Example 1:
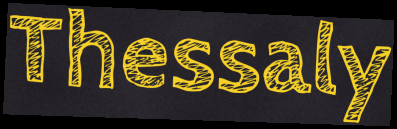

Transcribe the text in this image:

Thessaly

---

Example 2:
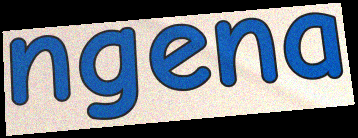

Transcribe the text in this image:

ngena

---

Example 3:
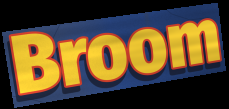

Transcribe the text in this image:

Broom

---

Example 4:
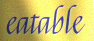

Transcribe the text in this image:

eatable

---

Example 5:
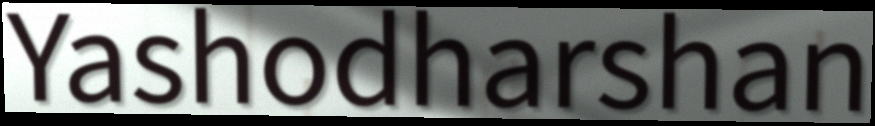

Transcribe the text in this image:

Yashodharshan